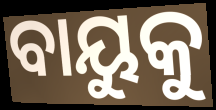
ବାୟୁକୁ